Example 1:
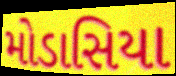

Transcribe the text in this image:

મોડાસિયા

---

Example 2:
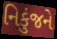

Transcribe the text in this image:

નિકુંજને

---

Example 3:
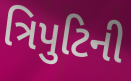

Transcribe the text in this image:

ત્રિપુટિની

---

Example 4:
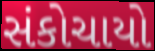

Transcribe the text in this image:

સંકોચાયો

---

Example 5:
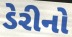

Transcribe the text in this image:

ડેરીનો